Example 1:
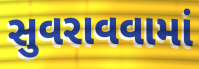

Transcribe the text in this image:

સુવરાવવામાં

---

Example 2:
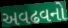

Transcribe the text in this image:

અવઢવનો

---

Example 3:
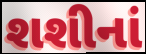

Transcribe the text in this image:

શશીનાં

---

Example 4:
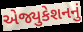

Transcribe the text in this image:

એજ્યુકેશનનું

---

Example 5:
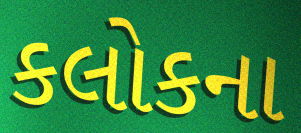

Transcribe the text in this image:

કલોકના